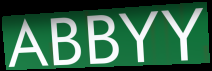
ABBYY